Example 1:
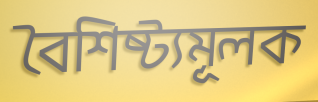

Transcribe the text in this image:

বৈশিষ্ট্যমূলক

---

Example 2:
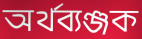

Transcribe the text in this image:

অৰ্থব্যঞ্জক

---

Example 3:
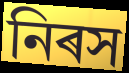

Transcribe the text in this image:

নিৰস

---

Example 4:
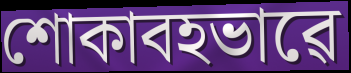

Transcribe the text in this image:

শোকাবহভাৱে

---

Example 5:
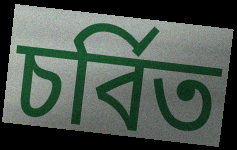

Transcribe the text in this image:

চৰ্বিত